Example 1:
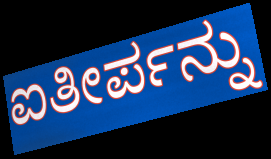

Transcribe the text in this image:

ಐತೀರ್ಪನ್ನು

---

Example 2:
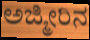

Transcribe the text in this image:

ಅಜ್ಮೀರಿನ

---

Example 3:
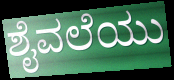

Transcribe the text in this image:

ಶೈವಲೆಯು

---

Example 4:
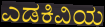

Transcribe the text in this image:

ಎಡಕಿವಿಯ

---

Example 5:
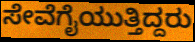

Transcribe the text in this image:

ಸೇವೆಗೈಯುತ್ತಿದ್ದರು